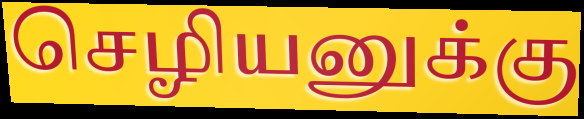
செழியனுக்கு